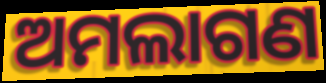
ଅମଲାଗଣ